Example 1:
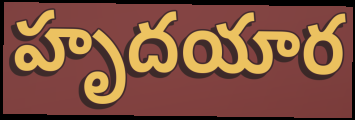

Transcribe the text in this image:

హృదయార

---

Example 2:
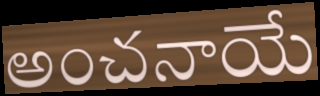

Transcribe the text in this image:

అంచనాయే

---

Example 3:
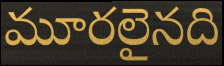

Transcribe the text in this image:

మూరలైనది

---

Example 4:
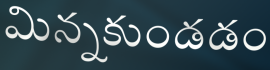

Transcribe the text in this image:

మిన్నకుండడం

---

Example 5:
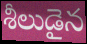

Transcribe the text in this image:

శీలుడైన